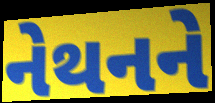
નેથનને